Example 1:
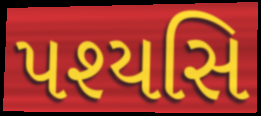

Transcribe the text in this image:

પશ્યસિ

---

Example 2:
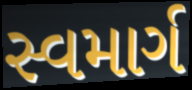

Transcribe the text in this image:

સ્વમાર્ગ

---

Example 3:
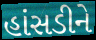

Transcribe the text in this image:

હાંસડીને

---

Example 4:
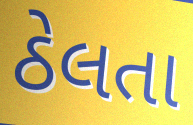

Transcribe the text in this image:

ઠેલતા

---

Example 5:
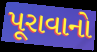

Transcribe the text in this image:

પૂરાવાનો